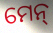
ମେନ୍